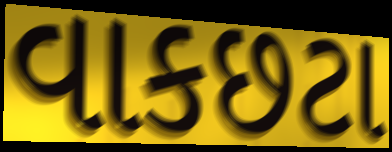
વાકછટા